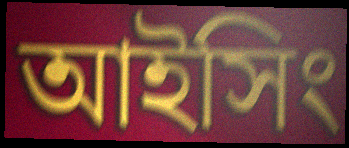
আইসিং